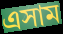
এসাম